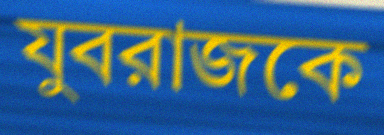
যুবরাজকে